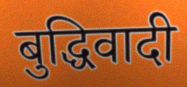
बुद्धिवादी